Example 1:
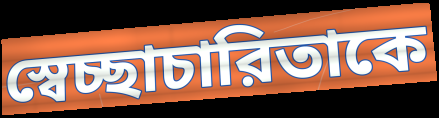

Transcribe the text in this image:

স্বেচ্ছাচারিতাকে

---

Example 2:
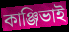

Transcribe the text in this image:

কাঞ্জিভাই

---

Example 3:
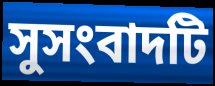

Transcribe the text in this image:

সুসংবাদটি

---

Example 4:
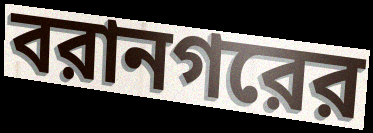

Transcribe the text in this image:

বরানগরের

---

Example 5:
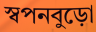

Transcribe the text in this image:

স্বপনবুড়ো